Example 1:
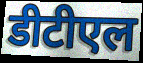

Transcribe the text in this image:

डीटीएल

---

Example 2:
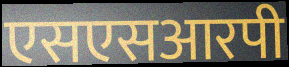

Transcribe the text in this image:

एसएसआरपी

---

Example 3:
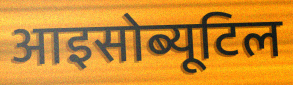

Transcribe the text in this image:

आइसोब्यूटिल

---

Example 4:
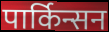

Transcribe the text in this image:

पार्किन्सन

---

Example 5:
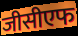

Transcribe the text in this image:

जीसीएफ